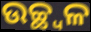
ଉଚ୍ଛ୍ୱଳ